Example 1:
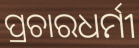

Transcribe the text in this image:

ପ୍ରଚାରଧର୍ମୀ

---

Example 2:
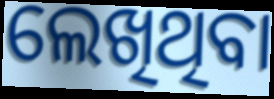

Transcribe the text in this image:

ଲେଖିଥିବା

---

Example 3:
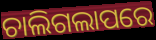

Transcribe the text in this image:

ଚାଲିଗଲାପରେ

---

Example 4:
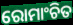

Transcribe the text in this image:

ରୋମାଂଚିତ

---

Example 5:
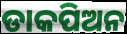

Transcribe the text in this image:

ଡାକପିଅନ